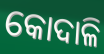
କୋଦାଳି